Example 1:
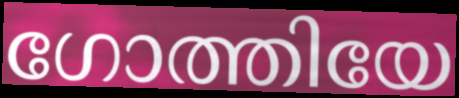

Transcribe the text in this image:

ഗോത്തിയേ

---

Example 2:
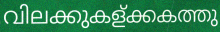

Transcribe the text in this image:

വിലക്കുകള്ക്കകത്തു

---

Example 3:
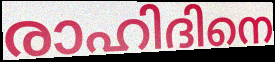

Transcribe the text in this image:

രാഹിദിനെ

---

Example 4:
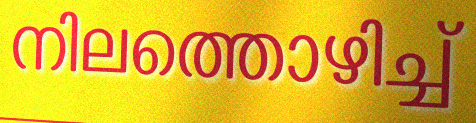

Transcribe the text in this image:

നിലത്തൊഴിച്ച്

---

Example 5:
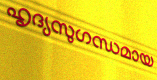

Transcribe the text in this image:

ഹൃദ്യസുഗന്ധമായ